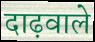
दाढ़वाले